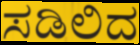
ಸಡಿಲಿದ